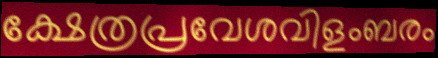
ക്ഷേത്രപ്രവേശവിളംബരം